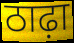
ठाढ़ा